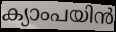
ക്യാംപയിൻ